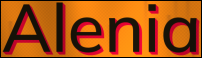
Alenia